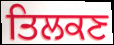
ਤਿਲਕਣ